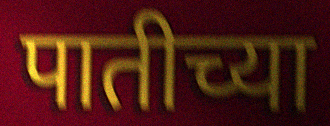
पातीच्या